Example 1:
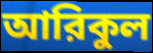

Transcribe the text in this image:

আরিকুল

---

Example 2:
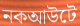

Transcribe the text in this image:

নকআউটে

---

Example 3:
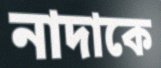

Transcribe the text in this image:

নাদাকে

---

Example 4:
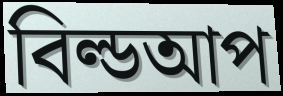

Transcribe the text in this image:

বিল্ডআপ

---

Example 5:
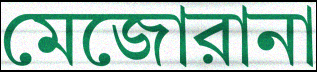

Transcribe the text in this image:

মেজোরানা